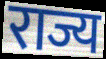
राज्य